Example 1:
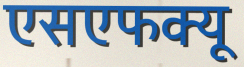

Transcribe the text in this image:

एसएफक्यू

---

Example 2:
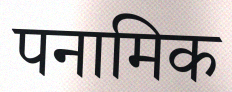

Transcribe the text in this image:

पनामिक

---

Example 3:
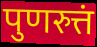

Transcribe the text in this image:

पुणरुत्तं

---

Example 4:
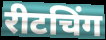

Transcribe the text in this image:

रीटचिंग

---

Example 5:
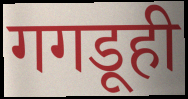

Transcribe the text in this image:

गगडूही